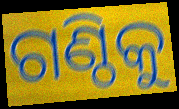
ଗଣ୍ଠିକୁ